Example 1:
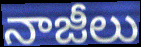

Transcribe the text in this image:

నాజీలు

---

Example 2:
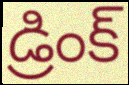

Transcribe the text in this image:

డ్రింక్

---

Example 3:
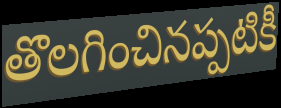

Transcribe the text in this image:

తొలగించినప్పటికీ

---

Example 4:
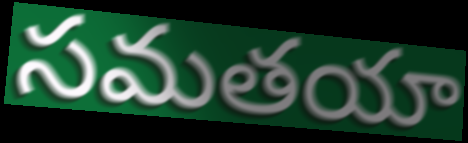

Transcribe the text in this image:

సమతయా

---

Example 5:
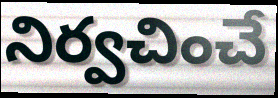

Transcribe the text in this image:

నిర్వచించే